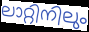
ലാറ്റിനിലും